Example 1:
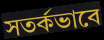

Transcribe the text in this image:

সতর্কভাবে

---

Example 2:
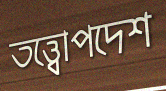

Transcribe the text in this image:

তত্ত্বোপদেশ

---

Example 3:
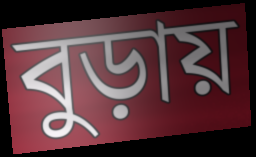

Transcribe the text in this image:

বুড়ায়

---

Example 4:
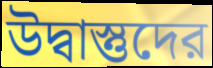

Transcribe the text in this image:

উদ্বাস্তুদের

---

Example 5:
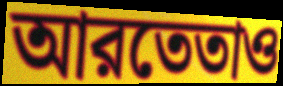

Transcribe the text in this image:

আরতেতাও